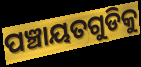
ପଞ୍ଚାୟତଗୁଡିକୁ